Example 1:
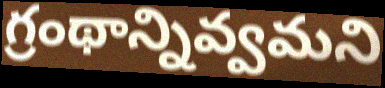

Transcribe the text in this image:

గ్రంథాన్నివ్వమని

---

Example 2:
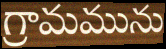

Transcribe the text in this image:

గ్రామమును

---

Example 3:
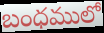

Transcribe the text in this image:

బంధములో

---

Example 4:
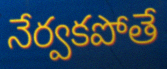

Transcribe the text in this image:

నేర్వకపోతే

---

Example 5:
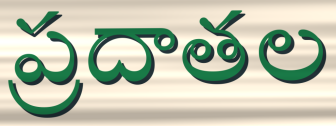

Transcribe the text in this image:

ప్రదాతల